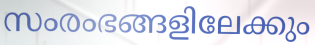
സംരംഭങ്ങളിലേക്കും